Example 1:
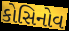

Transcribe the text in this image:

કોસિનોવ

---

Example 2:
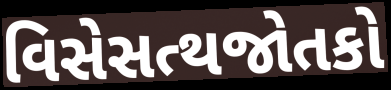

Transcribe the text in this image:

વિસેસત્થજોતકો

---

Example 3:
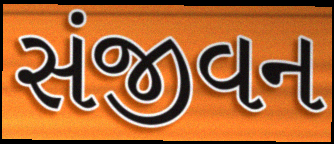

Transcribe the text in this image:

સંજીવન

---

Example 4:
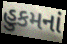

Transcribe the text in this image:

હુકમનાં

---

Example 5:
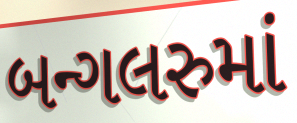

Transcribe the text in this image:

બન્ગલરુમાં